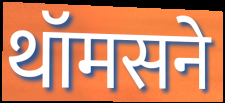
थॉमसने